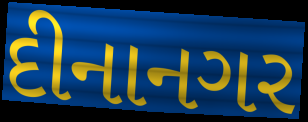
દીનાનગર